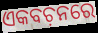
ଏକବଚ଼ନରେ